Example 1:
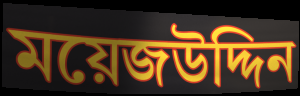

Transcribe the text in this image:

ময়েজউদ্দিন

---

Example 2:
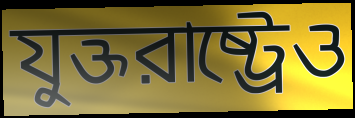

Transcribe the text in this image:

যুক্তরাষ্ট্রেও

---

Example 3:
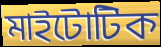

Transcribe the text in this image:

মাইটোটিক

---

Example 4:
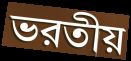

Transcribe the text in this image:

ভরতীয়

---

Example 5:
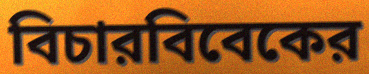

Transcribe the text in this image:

বিচারবিবেকের